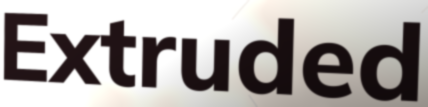
Extruded